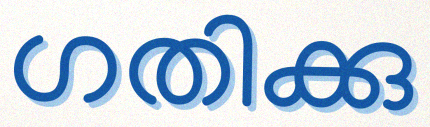
ഗതിക്കു